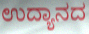
ಉದ್ಯಾನದ